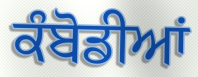
ਕੰਬੋਡੀਆਂ